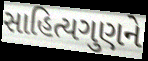
સાહિત્યગુણને